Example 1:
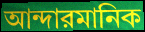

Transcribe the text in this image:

আন্দারমানিক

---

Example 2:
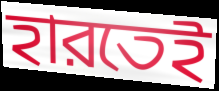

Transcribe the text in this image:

হারতেই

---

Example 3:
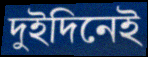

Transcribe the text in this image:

দুইদিনেই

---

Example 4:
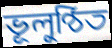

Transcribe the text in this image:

ভূলুণ্ঠিত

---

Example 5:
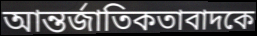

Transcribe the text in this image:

আন্তর্জাতিকতাবাদকে